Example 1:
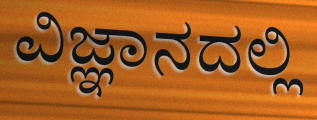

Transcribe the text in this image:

ವಿಜ್ಞಾನದಲ್ಲಿ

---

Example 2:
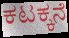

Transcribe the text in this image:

ಕಟಕ್ಕನೆ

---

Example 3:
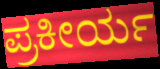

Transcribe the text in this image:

ಪ್ರಕೀರ್ಯ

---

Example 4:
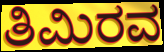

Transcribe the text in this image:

ತಿಮಿರವ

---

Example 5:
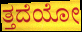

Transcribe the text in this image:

ತ್ತದೆಯೋ